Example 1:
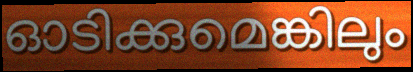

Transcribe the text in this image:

ഓടിക്കുമെങ്കിലും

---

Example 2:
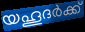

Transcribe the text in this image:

യഹൂദർക്ക്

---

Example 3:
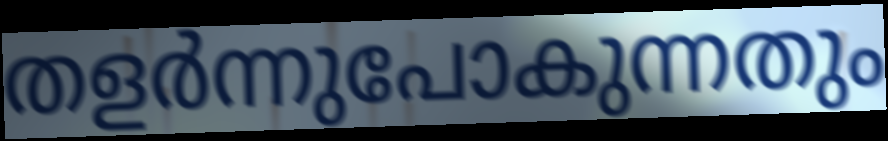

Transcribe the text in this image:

തളർന്നുപോകുന്നതും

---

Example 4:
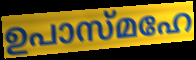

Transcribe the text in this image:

ഉപാസ്മഹേ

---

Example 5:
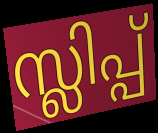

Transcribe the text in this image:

സ്ലിപ്പ്